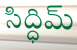
సిద్ధిమ్